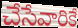
చేసేవారికే